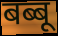
बब्बू